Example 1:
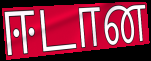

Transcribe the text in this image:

ஈடான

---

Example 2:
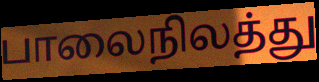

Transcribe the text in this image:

பாலைநிலத்து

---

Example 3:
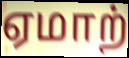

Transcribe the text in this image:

ஏமாற்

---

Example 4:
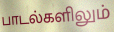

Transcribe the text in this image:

பாடல்களிலும்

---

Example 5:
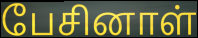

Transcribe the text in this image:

பேசினாள்